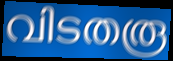
വിടതരൂ